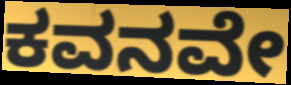
ಕವನವೇ